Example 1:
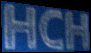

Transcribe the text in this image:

HCH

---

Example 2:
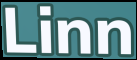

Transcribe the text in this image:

Linn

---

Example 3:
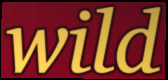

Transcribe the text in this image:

wild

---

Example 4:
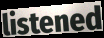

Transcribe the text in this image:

listened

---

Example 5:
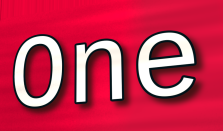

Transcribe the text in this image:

One